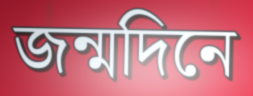
জন্মদিনে